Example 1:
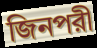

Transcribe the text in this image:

জিনপরী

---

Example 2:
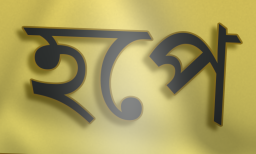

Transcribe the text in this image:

হপে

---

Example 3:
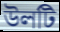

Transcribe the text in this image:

উলটি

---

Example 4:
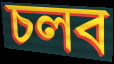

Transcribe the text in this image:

চলব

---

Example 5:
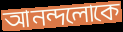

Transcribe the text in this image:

আনন্দলোকে